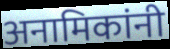
अनामिकांनी